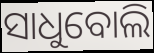
ସାଧୁବୋଲି